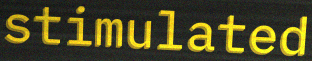
stimulated